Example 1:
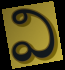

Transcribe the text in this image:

వి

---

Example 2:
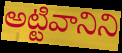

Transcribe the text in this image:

అట్టివానిని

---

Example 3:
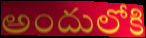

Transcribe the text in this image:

అందులోకి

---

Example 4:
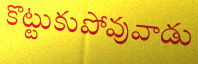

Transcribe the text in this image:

కొట్టుకుపోవువాడు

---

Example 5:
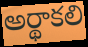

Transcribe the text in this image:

అర్థాకలి